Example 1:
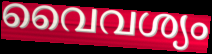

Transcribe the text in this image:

വൈവശ്യം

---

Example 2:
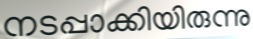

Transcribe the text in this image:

നടപ്പാക്കിയിരുന്നു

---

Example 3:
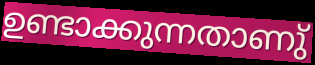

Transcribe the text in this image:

ഉണ്ടാക്കുന്നതാണു്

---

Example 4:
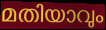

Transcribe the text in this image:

മതിയാവും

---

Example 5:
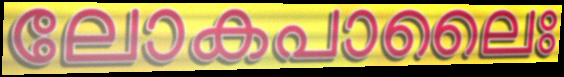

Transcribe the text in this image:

ലോകപാലൈഃ